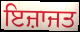
ਇਜ਼ਾਜਤ